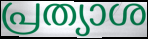
പ്രത്യാശ